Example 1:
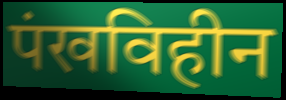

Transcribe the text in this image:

पंखविहीन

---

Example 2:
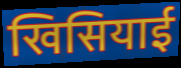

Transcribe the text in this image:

खिसियाई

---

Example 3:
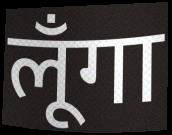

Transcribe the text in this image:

लूँगा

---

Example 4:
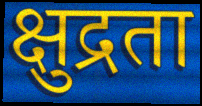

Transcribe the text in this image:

क्षुद्रता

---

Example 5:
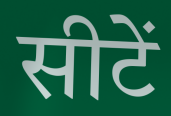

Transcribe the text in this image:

सीटें